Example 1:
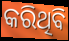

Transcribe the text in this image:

କରିଥିବି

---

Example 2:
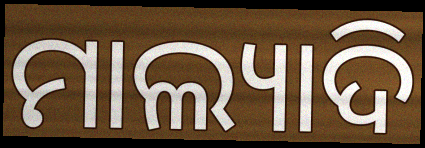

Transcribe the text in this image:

ମାଲ୍ୟାଦି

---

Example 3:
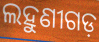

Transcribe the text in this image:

ଲହୁଣୀଗଡ଼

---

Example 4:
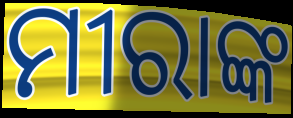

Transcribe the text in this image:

ମୀରାଙ୍କ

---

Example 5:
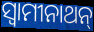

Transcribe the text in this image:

ସ୍ୱାମୀନାଥନ୍